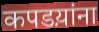
कपडय़ांना